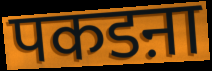
पकडऩा